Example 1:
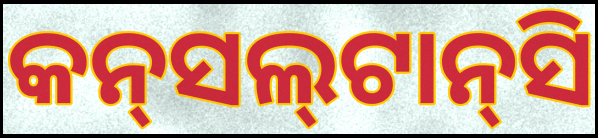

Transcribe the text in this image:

କନ୍‌ସଲ୍‌ଟାନ୍‌ସି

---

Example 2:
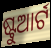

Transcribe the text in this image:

ଷ୍ଟୁଆର୍ଟ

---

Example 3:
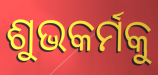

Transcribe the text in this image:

ଶୁଭକର୍ମକୁ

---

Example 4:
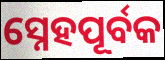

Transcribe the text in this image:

ସ୍ନେହପୂର୍ବକ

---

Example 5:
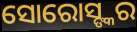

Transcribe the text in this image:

ସୋରୋସ୍ଙ୍କର